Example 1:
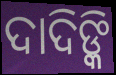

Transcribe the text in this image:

ଦାଦିଙ୍କି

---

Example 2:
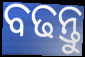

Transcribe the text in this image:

ବଢନ୍ତୁ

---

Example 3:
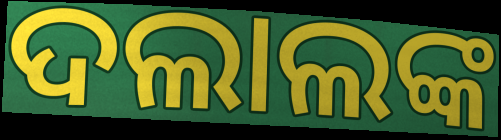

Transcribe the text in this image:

ଦଲାଲଙ୍କ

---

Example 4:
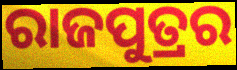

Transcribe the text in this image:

ରାଜପୁତ୍ରର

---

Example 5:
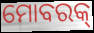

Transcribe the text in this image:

ମୋବରକ୍